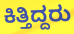
ಕಿತ್ತಿದ್ದರು